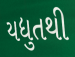
યદ્યુતથી